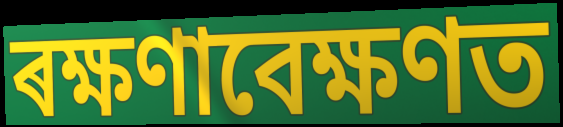
ৰক্ষণাবেক্ষণত